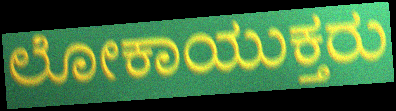
ಲೋಕಾಯುಕ್ತರು